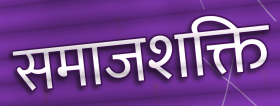
समाजशक्ति